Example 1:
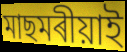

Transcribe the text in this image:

মাছমৰীয়াই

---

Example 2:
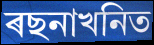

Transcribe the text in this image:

ৰছনাখনিত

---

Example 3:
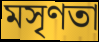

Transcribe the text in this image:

মসৃণতা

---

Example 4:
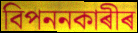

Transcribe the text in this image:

বিপননকাৰীৰ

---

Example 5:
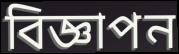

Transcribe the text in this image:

বিজ্ঞাপন